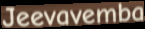
Jeevavemba